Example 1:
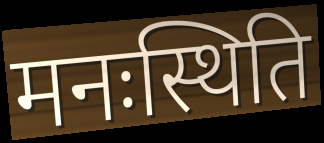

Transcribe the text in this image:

मनःस्थिति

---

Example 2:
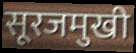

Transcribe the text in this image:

सूरजमुखी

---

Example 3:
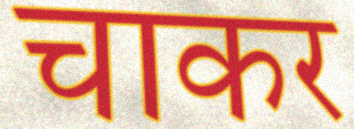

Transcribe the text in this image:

चाकर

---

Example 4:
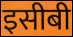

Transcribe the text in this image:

इसीबी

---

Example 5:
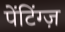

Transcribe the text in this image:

पेंटिंग्ज़